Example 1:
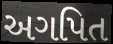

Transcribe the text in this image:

અગપિત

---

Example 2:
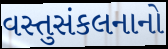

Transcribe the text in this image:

વસ્તુસંકલનાનો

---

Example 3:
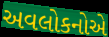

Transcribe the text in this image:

અવલોકનોએ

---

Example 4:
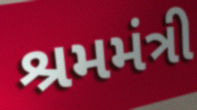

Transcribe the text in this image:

શ્રમમંત્રી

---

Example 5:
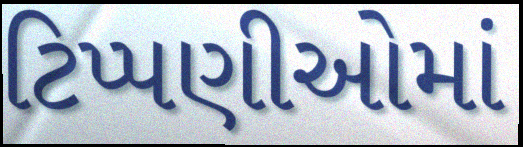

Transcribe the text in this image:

ટિપ્પણીઓમાં